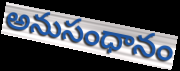
అనుసంధానం